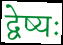
द्वेष्यः